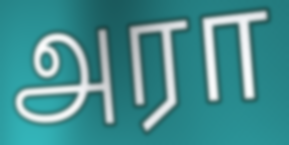
அரா